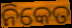
ନିକେତ